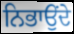
ਨਿਭਾਉਂਦੇ